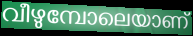
വീഴുമ്പോലെയാണ്